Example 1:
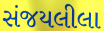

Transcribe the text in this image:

સંજયલીલા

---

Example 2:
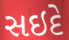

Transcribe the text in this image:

સઇદે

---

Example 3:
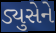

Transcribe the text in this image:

ડ્યુસેને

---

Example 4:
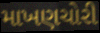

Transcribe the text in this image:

માખણચોરી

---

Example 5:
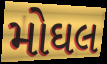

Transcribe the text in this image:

મોઘલ